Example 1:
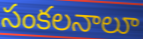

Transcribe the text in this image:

సంకలనాలూ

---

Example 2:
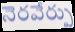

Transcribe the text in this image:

నెరవేర్పు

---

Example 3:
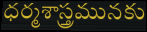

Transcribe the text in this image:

ధర్మశాస్త్రమునకు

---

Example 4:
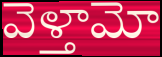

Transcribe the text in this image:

వెళ్తామో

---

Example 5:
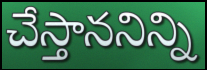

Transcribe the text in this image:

చేస్తాననిన్ని